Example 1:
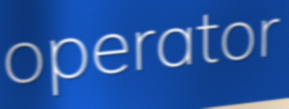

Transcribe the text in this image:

operator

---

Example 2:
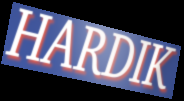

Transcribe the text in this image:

HARDIK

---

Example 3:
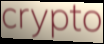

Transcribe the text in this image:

crypto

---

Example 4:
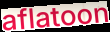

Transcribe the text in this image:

aflatoon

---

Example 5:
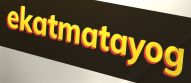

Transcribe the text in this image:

ekatmatayog